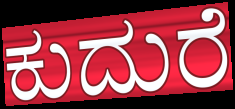
ಕುದುರೆ